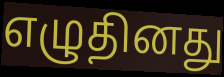
எழுதினது